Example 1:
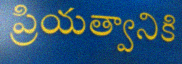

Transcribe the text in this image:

ప్రియత్వానికి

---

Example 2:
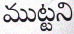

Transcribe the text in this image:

ముట్టని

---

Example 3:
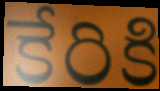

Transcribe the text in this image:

కేరికి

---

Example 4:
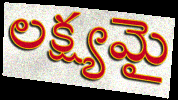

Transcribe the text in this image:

లక్ష్యమై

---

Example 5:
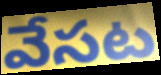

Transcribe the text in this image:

వేసట